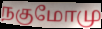
நகுமோமு